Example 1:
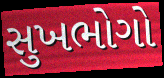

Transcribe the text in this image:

સુખભોગો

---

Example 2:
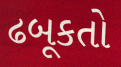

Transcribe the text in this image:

ઢબૂકતો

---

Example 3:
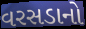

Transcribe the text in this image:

વરસડાનો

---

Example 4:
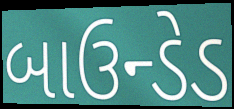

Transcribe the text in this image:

બાઉન્ડેડ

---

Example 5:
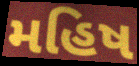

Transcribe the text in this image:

મહિષ